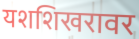
यशशिखरावर